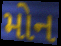
મોન